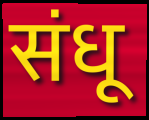
संधू